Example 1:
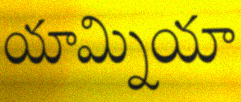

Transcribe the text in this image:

యామ్నియా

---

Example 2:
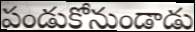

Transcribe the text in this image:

పండుకోనుండాడు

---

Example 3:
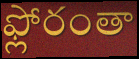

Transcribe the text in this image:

ఫ్లోరంతా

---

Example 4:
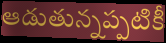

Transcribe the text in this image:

ఆడుతున్నప్పటికీ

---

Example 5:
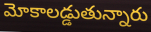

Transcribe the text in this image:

మోకాలడ్డుతున్నారు